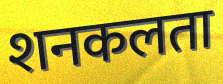
शनकलता